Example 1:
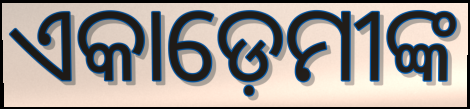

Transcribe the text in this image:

ଏକାଡ଼େମୀଙ୍କ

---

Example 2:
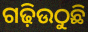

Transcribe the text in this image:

ଗଢ଼ିଉଠୁଛି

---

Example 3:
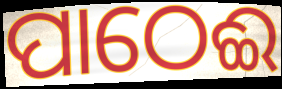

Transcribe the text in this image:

ପାଠେଈ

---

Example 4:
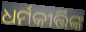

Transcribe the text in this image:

ଧର୍ମକୀର୍ତ୍ତିଙ୍କ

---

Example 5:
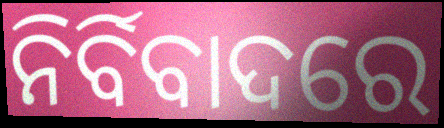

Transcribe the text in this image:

ନିର୍ବିବାଦରେ